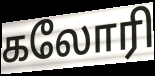
கலோரி